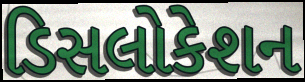
ડિસલોકેશન